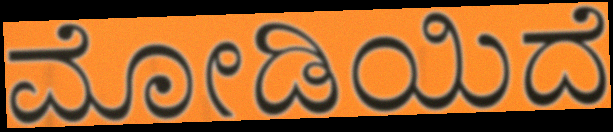
ಮೋಡಿಯಿದೆ